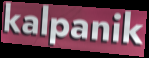
kalpanik